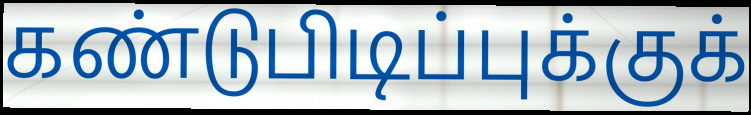
கண்டுபிடிப்புக்குக்